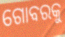
ଗୋବରକୁ